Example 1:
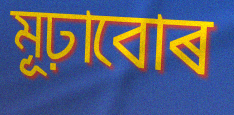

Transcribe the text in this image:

মূঢ়াবোৰ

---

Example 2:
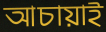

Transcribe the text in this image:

আচায়াই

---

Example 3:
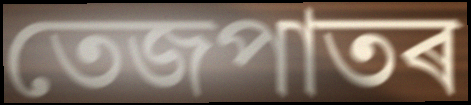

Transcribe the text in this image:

তেজপাতৰ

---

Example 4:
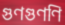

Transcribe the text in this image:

গুণগুণণি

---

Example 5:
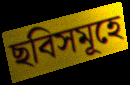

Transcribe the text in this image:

ছবিসমূহে